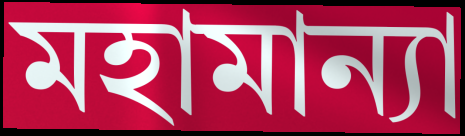
মহামান্যা